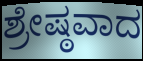
ಶ್ರೇಷ್ಠವಾದ